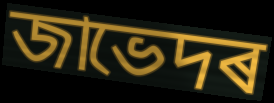
জাভেদৰ